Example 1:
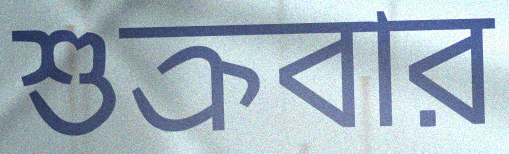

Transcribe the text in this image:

শুক্রবার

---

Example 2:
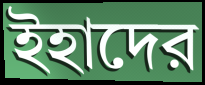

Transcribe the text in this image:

ইহাদের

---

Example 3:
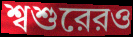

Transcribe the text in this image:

শ্বশুরেরও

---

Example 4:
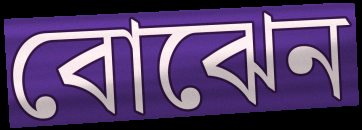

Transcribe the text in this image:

বোঝেন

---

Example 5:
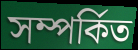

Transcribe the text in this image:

সম্পর্কিত